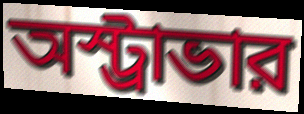
অস্ট্রাভার